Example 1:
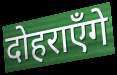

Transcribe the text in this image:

दोहराएँगे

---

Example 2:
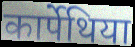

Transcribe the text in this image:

कार्पेथिया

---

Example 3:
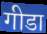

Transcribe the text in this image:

गीडा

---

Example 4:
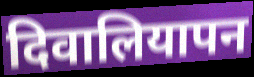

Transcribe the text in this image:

दिवालियापन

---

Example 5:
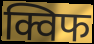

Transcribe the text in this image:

क्विफ